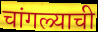
चांगल्याची